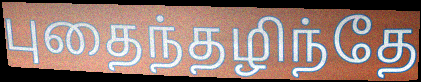
புதைந்தழிந்தே